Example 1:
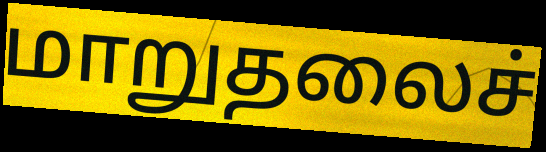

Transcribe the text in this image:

மாறுதலைச்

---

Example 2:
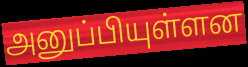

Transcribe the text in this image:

அனுப்பியுள்ளன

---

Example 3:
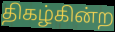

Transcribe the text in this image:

திகழ்கின்ற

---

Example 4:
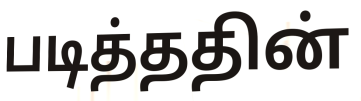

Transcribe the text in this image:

படித்ததின்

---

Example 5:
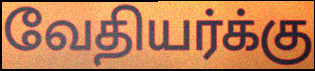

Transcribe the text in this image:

வேதியர்க்கு